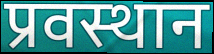
प्रवस्थान